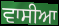
ਵਾਸੀਆ